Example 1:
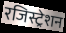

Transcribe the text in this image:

रजिस्ट्रेशन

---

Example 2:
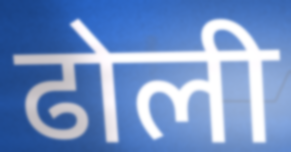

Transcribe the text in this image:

ढोली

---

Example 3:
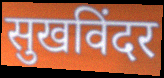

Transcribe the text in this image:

सुखविंदर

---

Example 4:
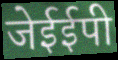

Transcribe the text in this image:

जेईईपी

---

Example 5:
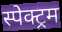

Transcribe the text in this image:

स्पेक्ट्रम